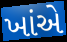
ખાંએ